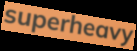
superheavy